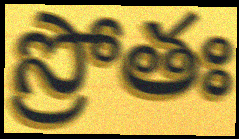
స్రోతః